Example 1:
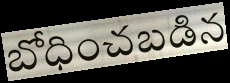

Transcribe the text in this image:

బోధించబడిన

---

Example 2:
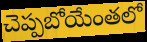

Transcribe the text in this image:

చెప్పబోయేంతలో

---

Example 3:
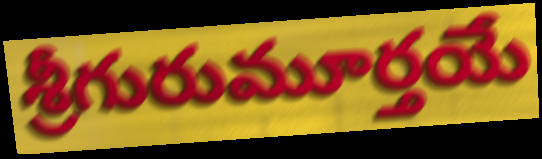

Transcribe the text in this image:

శ్రీగురుమూర్తయే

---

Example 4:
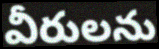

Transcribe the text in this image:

వీరులను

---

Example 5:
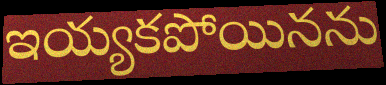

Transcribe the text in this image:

ఇయ్యకపోయినను